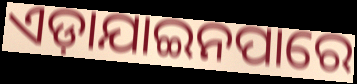
ଏଡ଼ାଯାଇନପାରେ